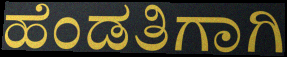
ಹೆಂಡತಿಗಾಗಿ